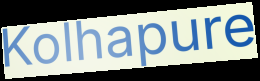
Kolhapure